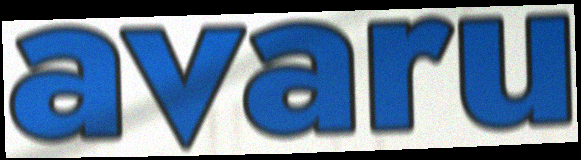
avaru